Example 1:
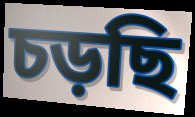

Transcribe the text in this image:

চড়ছি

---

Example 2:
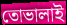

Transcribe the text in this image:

তোভালাই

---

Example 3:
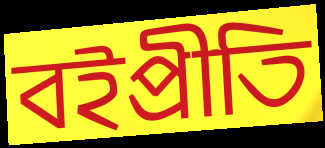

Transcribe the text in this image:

বইপ্রীতি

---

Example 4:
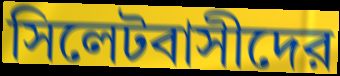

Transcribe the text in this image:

সিলেটবাসীদের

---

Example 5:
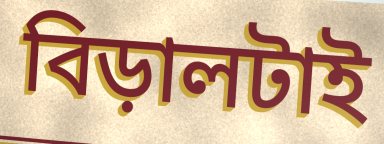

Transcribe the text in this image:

বিড়ালটাই